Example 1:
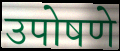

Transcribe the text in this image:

उपोषणे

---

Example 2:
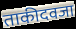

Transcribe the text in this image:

ताकीदवजा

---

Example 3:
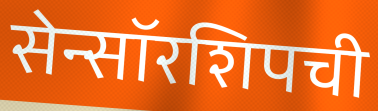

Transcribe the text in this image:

सेन्सॉरशिपची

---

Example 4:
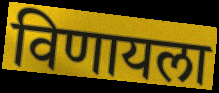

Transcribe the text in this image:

विणायला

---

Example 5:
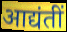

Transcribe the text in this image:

आद्यंतीं